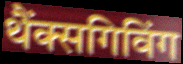
थैंक्सगिविंग